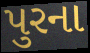
પુરના